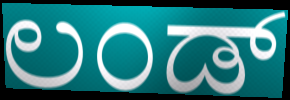
ಲಂಡ್